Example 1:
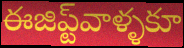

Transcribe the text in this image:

ఈజిప్ట్‌వాళ్ళకూ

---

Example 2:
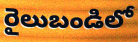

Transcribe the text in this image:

రైలుబండిలో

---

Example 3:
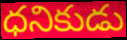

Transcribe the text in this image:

ధనికుడు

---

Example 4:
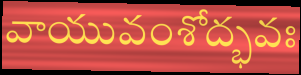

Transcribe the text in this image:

వాయువంశోద్భవః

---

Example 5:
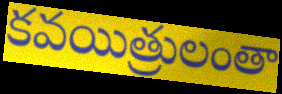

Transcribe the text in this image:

కవయిత్రులంతా